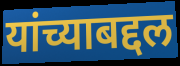
यांच्याबद्दल